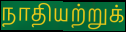
நாதியற்றுக்